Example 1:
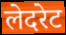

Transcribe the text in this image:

लेदरेट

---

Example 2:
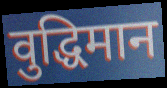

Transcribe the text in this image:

वुद्धिमान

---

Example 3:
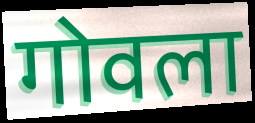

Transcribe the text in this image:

गोवला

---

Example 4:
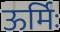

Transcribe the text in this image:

ऊर्मिः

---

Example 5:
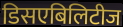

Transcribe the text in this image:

डिसएबिलिटीज